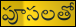
పూసలతో